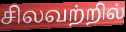
சிலவற்றில்